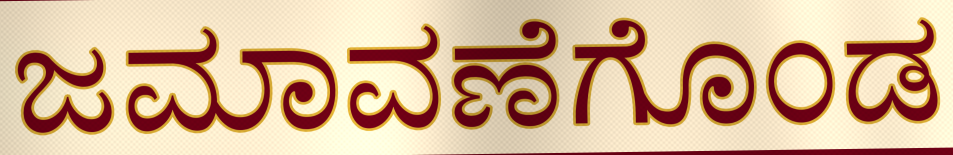
ಜಮಾವಣೆಗೊಂಡ